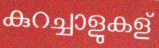
കുറച്ചാളുകള്